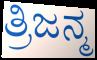
ತ್ರಿಜನ್ಮ